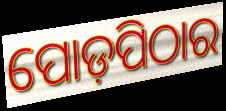
ପୋଡ଼ପିଠାର